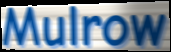
Mulrow